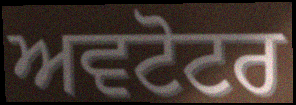
ਅਵਟੋਟਰ